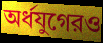
অর্ধযুগেরও